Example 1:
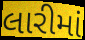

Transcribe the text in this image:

લારીમાં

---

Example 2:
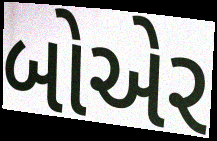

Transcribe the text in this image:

બોએર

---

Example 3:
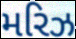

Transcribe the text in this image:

મરિઝ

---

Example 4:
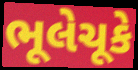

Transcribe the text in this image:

ભૂલેચૂકે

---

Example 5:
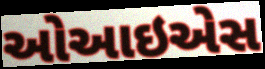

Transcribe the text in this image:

ઓઆઇએસ